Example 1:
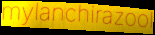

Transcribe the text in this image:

mylanchirazool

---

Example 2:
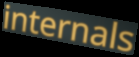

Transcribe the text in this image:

internals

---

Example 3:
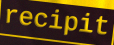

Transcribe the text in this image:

recipit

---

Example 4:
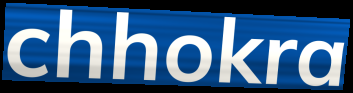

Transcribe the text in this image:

chhokra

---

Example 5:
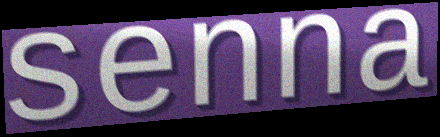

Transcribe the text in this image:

senna